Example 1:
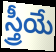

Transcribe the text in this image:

స్త్రీయే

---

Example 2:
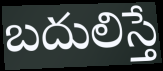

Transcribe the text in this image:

బదులిస్తే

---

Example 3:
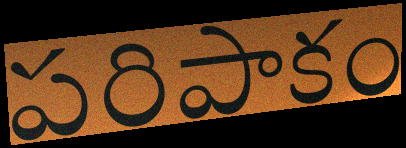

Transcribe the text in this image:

పరిపాకం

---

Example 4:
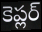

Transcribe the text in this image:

కెప్లర్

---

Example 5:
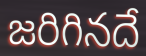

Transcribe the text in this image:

జరిగినదే